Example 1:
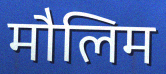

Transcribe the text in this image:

मौलिम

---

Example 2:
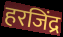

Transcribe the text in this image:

हरजिंद्र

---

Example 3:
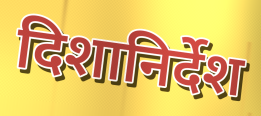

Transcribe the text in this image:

दिशानिर्देश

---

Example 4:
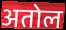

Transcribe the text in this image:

अतोल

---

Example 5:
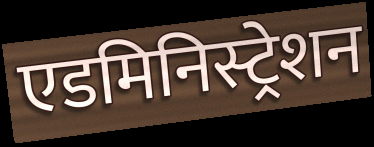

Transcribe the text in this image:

एडमिनिस्‍ट्रेशन